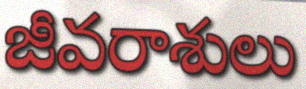
జీవరాశులు